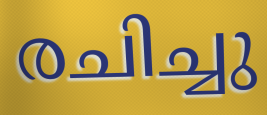
രചിച്ചു